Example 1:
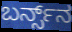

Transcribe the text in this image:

ಬರ್ನ್ಸ್‌ನ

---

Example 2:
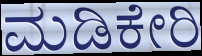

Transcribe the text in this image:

ಮಡಿಕೇರಿ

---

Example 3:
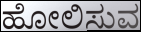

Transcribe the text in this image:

ಹೋಲಿಸುವ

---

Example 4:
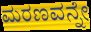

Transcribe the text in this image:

ಮರಣವನ್ನೇ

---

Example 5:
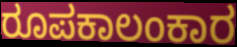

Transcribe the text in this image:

ರೂಪಕಾಲಂಕಾರ